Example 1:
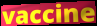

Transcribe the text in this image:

vaccine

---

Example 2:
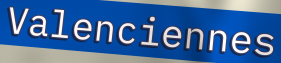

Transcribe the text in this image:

Valenciennes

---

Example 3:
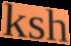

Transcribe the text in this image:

ksh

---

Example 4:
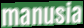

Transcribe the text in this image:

manusia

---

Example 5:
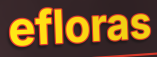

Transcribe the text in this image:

efloras